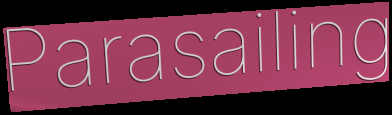
Parasailing